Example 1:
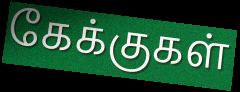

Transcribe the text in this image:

கேக்குகள்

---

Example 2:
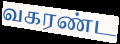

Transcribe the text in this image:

வகரண்ட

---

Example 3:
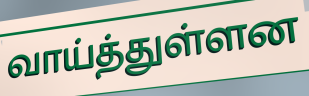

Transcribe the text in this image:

வாய்த்துள்ளன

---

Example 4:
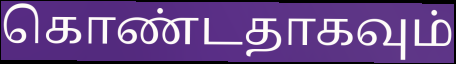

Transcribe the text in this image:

கொண்டதாகவும்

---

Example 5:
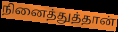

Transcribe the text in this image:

நினைத்துத்தான்